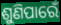
ଶୁଣିପାରେଁ